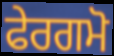
ਫੇਰਗਮੋ